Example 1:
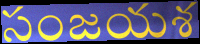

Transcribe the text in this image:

సంజయశ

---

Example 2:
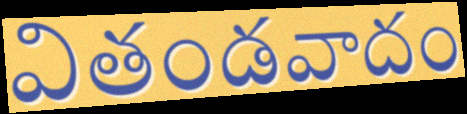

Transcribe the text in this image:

వితండవాదం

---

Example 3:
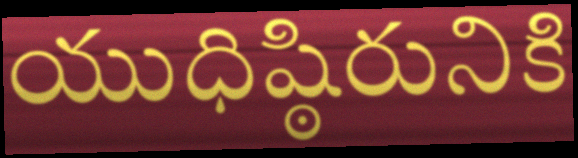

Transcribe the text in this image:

యుధిష్ఠిరునికి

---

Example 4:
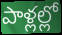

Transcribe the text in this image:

పాళ్లల్లో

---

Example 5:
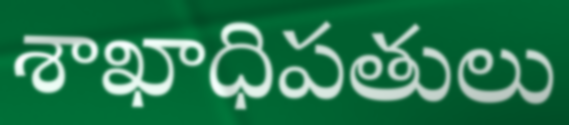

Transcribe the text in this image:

శాఖాధిపతులు